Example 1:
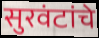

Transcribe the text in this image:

सुरवंटांचे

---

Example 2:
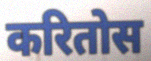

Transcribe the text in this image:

करितोस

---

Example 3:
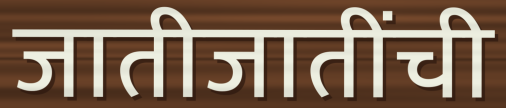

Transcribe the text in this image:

जातीजातींची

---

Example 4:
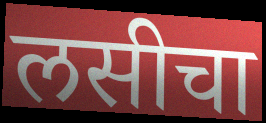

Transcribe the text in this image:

लसीचा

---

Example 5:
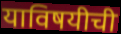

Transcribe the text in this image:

याविषयीची